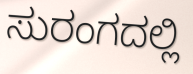
ಸುರಂಗದಲ್ಲಿ